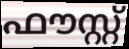
ഫൗസ്റ്റ്